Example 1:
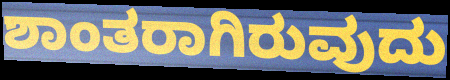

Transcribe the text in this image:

ಶಾಂತರಾಗಿರುವುದು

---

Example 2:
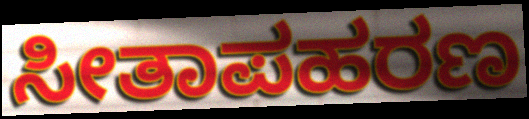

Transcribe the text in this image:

ಸೀತಾಪಹರಣ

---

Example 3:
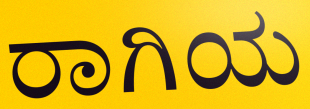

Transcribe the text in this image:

ರಾಗಿಯ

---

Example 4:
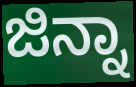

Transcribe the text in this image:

ಜಿನ್ನಾ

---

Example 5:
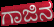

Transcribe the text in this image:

ಗಾಜಿನ